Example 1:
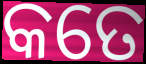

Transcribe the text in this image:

କତେ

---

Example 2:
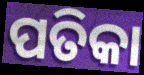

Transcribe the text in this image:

ପତିକା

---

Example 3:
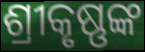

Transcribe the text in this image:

ଶ୍ରୀକୃଷ୍ଣଙ୍କ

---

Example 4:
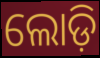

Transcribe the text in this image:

ଲୋଡ଼ି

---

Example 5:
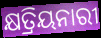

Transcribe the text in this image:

କ୍ଷତ୍ରିୟନାରୀ